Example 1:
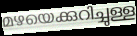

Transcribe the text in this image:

മഴയെക്കുറിച്ചുള്ള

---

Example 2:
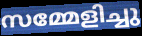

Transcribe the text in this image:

സമ്മേളിച്ചു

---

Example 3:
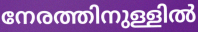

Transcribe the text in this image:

നേരത്തിനുള്ളിൽ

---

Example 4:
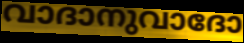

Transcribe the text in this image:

വാദാനുവാദോ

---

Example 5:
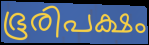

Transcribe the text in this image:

ഭൂരിപക്ഷം